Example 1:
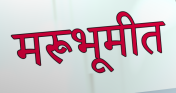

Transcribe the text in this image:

मरूभूमीत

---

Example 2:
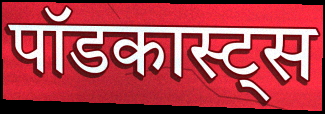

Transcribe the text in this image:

पॉडकास्ट्स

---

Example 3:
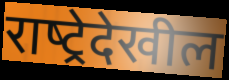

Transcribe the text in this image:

राष्ट्रेदेखील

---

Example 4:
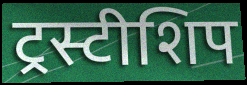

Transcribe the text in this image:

ट्रस्टीशिप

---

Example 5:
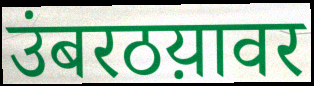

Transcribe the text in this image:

उंबरठय़ावर